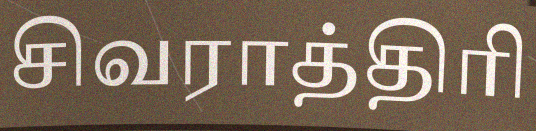
சிவராத்திரி